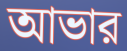
আভার